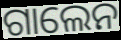
ଗାଲେନ